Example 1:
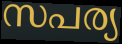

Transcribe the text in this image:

സപര്യ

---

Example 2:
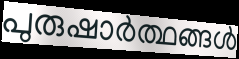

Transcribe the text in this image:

പുരുഷാർത്ഥങ്ങൾ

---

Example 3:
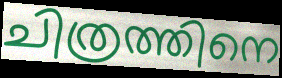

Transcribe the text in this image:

ചിത്രത്തിനെ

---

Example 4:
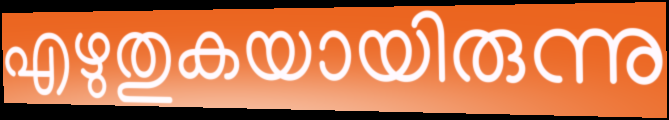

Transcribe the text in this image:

എഴുതുകയായിരുന്നു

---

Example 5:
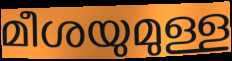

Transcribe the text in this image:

മീശയുമുള്ള